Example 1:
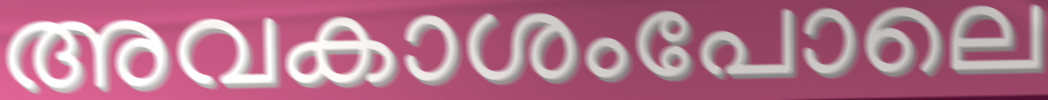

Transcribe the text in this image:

അവകാശംപോലെ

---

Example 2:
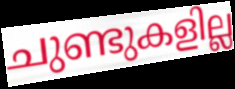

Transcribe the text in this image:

ചുണ്ടുകളില്ല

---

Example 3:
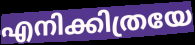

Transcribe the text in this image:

എനിക്കിത്രയേ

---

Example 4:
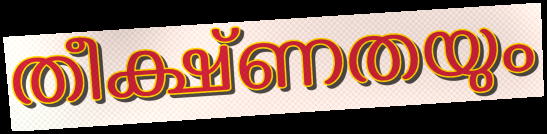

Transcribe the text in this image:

തീക്ഷ്‌ണതയും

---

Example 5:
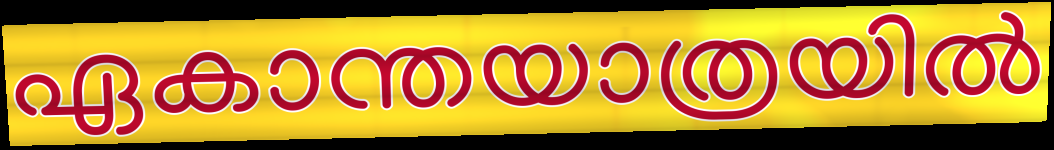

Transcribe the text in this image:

ഏകാന്തയാത്രയിൽ